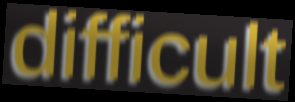
difficult